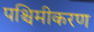
पश्चिमीकरण